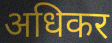
अधिकर